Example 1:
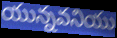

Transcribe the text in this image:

యున్నవనియు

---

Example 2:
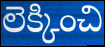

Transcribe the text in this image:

లెక్కించి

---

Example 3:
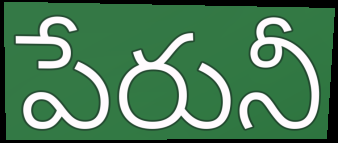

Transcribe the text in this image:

పేరునీ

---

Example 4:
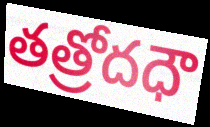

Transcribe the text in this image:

తత్రోదధౌ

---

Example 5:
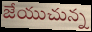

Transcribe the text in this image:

జేయుచున్న